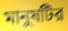
মানুষটির